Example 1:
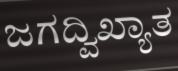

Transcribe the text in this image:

ಜಗದ್ವಿಖ್ಯಾತ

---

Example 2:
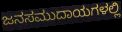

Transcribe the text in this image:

ಜನಸಮುದಾಯಗಳಲ್ಲಿ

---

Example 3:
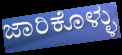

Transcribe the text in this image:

ಜಾರಿಕೊಳ್ಳು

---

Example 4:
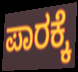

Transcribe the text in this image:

ಪಾರಕ್ಕೆ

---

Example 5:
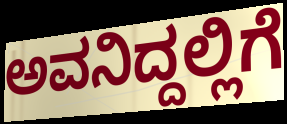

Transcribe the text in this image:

ಅವನಿದ್ದಲ್ಲಿಗೆ